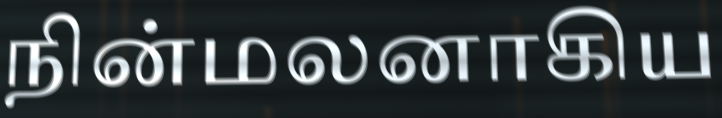
நின்மலனாகிய